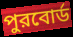
পুরবোর্ড